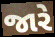
જારે